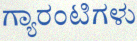
ಗ್ಯಾರಂಟಿಗಳು